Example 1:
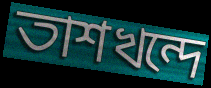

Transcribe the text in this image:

তাশখন্দে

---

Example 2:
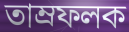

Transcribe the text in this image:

তাম্রফলক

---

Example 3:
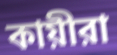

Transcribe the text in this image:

কায়ীরা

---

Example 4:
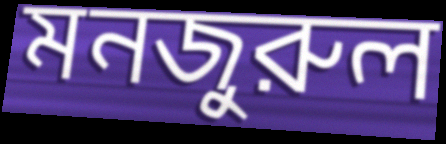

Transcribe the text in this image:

মনজুরুল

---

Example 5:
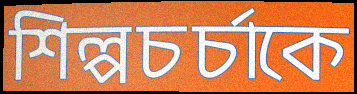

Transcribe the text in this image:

শিল্পচর্চাকে